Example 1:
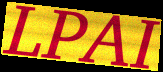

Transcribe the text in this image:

LPAI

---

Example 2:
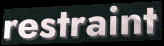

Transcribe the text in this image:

restraint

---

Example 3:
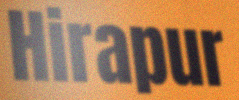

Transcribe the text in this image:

Hirapur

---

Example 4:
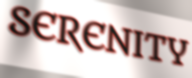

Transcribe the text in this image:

SERENITY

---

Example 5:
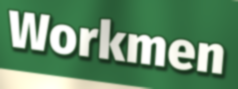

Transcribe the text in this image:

Workmen